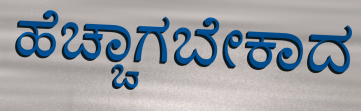
ಹೆಚ್ಚಾಗಬೇಕಾದ